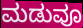
ಮಡುವೂ